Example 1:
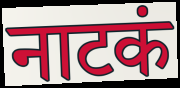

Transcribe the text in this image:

नाटकं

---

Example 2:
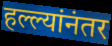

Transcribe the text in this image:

हल्ल्यांनंतर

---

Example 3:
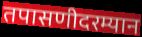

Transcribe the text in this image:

तपासणीदरम्यान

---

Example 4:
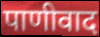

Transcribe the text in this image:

पाणीवाद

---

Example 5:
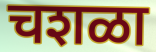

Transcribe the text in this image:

चशळा